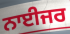
ਨਾਈਜਰ